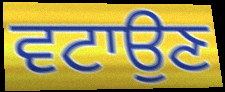
ਵਟਾਉਣ